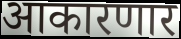
आकारणार